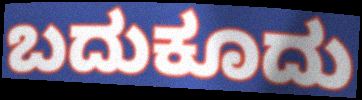
ಬದುಕೂದು